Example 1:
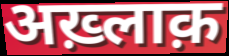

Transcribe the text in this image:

अख़्लाक़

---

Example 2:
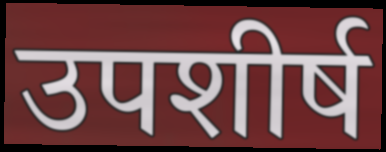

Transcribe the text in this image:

उपशीर्ष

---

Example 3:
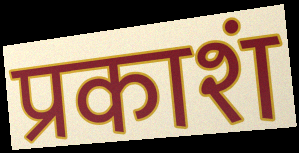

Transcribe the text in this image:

प्रकाशं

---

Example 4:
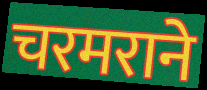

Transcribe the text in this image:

चरमराने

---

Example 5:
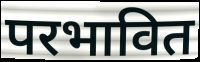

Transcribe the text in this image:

परभावित